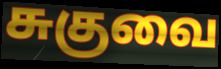
சுகுவை